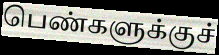
பெண்களுக்குச்